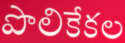
పొలికేకల